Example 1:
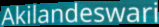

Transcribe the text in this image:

Akilandeswari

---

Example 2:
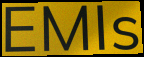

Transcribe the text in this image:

EMIs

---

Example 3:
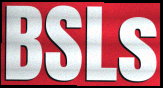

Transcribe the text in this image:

BSLs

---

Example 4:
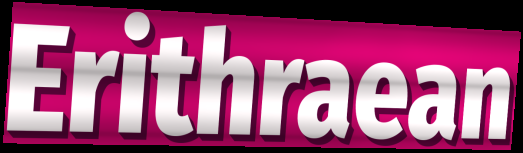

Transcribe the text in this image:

Erithraean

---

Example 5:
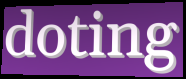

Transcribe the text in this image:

doting